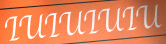
IUIUIUIU